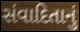
સંવાદિતાનું